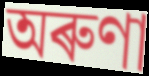
অৰুণা